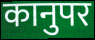
कानुपर